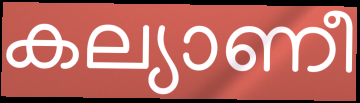
കല്യാണീ